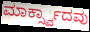
ಮಾರ್ಕ್ಸ್ವಾದವು